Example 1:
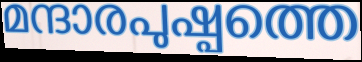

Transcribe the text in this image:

മന്ദാരപുഷ്പത്തെ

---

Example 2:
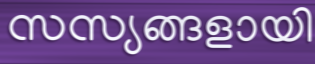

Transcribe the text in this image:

സസ്യങ്ങളായി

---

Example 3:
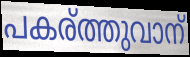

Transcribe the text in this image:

പകര്ത്തുവാന്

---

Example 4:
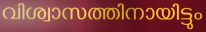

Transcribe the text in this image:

വിശ്വാസത്തിനായിട്ടും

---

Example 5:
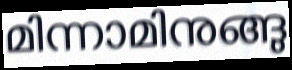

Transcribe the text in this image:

മിന്നാമിനുങ്ങു